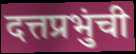
दत्तप्रभुंची